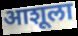
आशूला